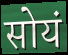
सोयं